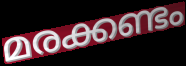
മരക്കണ്ടം